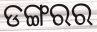
ଡଙ୍ଗରର